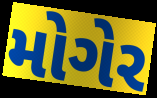
મોગેર